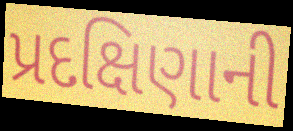
પ્રદક્ષિણાની